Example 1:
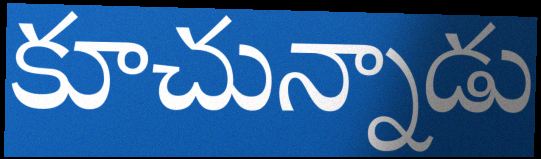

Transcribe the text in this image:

కూచున్నాడు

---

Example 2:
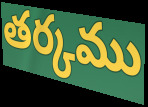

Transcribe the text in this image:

తర్కము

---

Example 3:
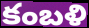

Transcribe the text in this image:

కంబళి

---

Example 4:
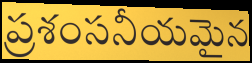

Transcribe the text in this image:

ప్రశంసనీయమైన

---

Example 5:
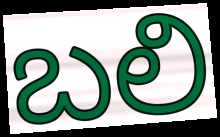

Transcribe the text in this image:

బలి